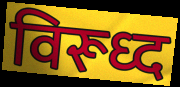
विरूध्द